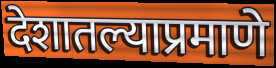
देशातल्याप्रमाणे